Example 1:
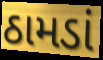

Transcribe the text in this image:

ઠામડાં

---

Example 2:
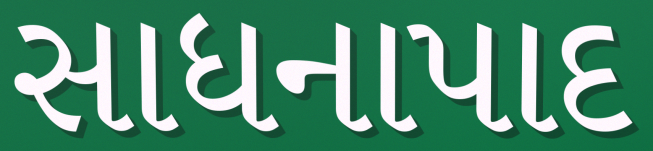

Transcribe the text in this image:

સાધનાપાદ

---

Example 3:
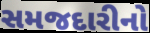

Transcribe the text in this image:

સમજદારીનો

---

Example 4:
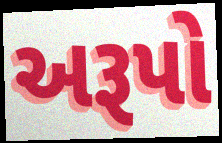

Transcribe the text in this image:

અરૂપો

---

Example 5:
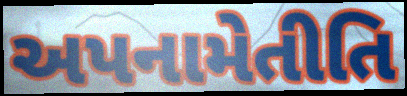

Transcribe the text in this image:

અપનામેતીતિ